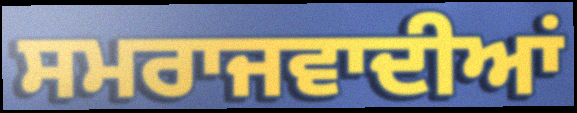
ਸਮਰਾਜਵਾਦੀਆਂ